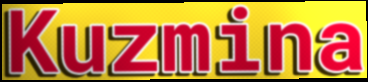
Kuzmina